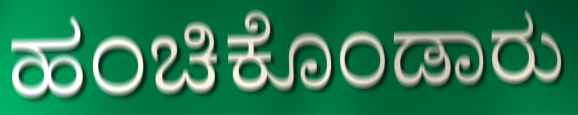
ಹಂಚಿಕೊಂಡಾರು